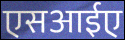
एसआईए